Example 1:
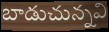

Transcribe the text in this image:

బాడుచున్నవి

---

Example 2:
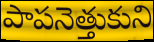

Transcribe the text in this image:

పాపనెత్తుకుని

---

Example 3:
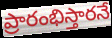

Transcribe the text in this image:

ప్రారంభిస్తారనే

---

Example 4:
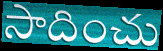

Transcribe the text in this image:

సాదించు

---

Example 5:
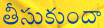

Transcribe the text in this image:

తీసుకుందా